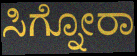
ಸಿಗ್ನೋರಾ